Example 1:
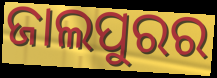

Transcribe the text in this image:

ଜାଲପୁରର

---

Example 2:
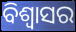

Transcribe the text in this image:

ବିଶ୍ୱାସର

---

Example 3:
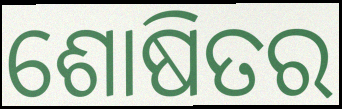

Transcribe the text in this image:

ଶୋଷିତର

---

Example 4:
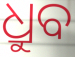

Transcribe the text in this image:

ଧ୍ରୁବ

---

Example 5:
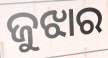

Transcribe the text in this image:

ଜୁଝାର